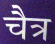
चैत्र